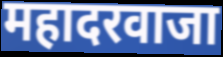
महादरवाजा